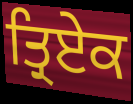
ਤ੍ਰਿਏਕ